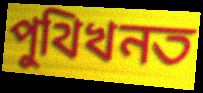
পুথিখনত